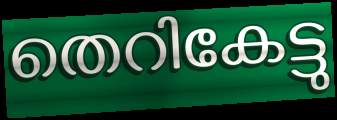
തെറികേട്ടു